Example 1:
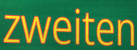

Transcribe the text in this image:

zweiten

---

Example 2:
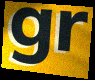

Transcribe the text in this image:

gr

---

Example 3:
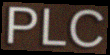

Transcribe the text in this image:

PLC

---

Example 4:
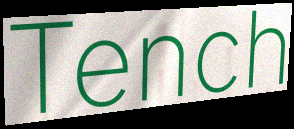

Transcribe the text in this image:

Tench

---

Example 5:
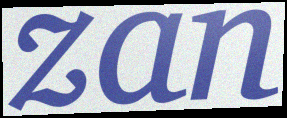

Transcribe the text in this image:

zan